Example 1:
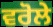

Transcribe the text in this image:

ਵਰੋਲੇ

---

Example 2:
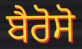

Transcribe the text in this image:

ਬੈਰੋਸੋ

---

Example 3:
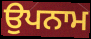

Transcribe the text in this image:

ਉਪਨਾਮ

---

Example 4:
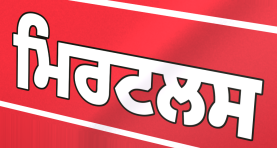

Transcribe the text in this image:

ਮਿਰਟਲਸ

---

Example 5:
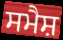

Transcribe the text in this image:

ਸਮੈਸ਼